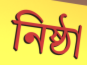
নিষ্ঠা